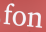
fon